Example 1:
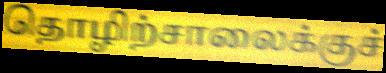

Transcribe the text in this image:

தொழிற்சாலைக்குச்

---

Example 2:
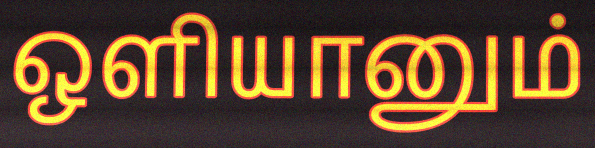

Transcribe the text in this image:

ஒளியானும்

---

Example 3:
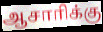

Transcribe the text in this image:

ஆசாரிக்கு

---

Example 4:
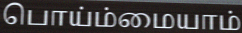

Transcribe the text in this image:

பொய்ம்மையாம்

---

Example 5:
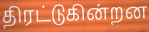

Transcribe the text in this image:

திரட்டுகின்றன